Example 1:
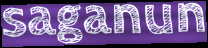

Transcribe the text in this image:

saganun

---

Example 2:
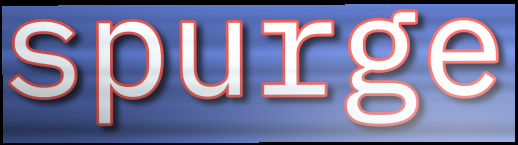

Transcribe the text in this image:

spurge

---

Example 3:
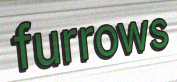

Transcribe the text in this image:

furrows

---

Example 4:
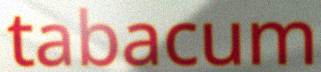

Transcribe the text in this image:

tabacum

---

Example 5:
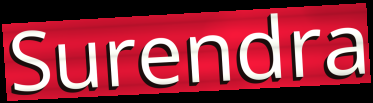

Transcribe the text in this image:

Surendra